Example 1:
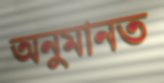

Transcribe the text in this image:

অনুমানত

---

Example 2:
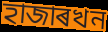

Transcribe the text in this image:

হাজাৰখন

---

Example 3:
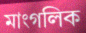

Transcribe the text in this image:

মাংগলিক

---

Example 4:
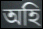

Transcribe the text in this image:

অহি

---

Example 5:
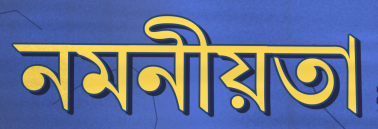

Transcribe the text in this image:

নমনীয়তা